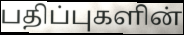
பதிப்புகளின்